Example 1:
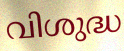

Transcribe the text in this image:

വിശുദ്ധ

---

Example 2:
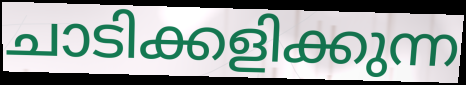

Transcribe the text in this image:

ചാടിക്കളിക്കുന്ന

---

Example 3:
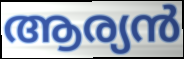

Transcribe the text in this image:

ആര്യൻ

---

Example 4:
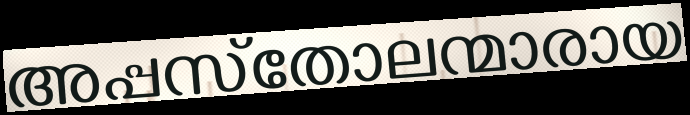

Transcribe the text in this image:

അപ്പസ്‌തോലന്മാരായ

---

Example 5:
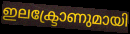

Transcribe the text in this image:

ഇലക്ട്രോണുമായി